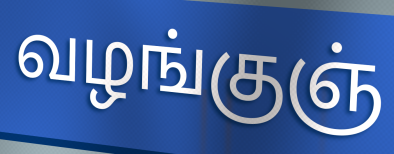
வழங்குஞ்